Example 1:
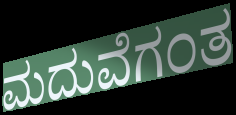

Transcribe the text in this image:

ಮದುವೆಗಂತ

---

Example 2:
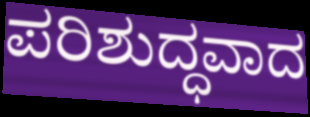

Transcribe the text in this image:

ಪರಿಶುದ್ಧವಾದ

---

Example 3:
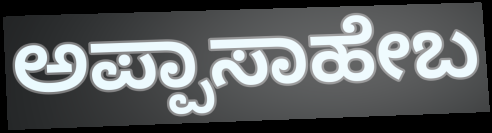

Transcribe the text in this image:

ಅಪ್ಪಾಸಾಹೇಬ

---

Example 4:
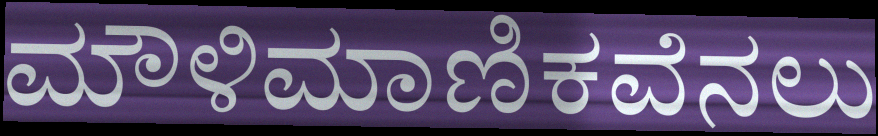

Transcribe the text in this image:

ಮೌಳಿಮಾಣಿಕವೆನಲು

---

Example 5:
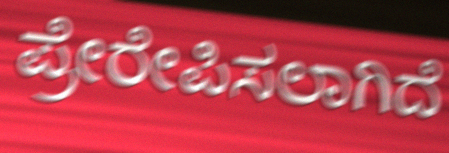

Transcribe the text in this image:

ಪ್ರೇರೇಪಿಸಲಾಗಿದೆ